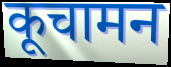
कूचामन